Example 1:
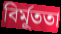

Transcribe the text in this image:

বির্মূততা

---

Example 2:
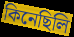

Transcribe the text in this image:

কিনেছিলি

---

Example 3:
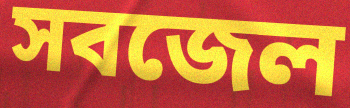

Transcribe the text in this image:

সবজেল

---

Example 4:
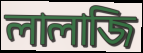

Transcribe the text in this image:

লালাজি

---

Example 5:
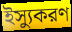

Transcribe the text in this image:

ইস্যুকরণ